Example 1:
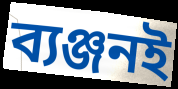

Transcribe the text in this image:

ব্যঞ্জনই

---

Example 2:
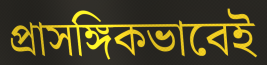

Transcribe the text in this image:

প্রাসঙ্গিকভাবেই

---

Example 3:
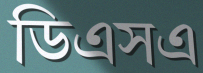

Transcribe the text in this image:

ডিএসএ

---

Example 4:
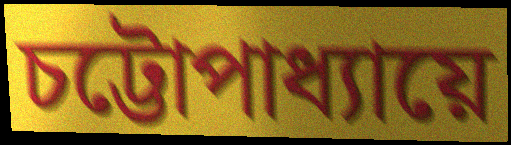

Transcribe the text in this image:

চট্টোপাধ্যায়ে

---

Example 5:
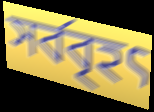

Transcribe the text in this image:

সর্ববৃহৎ